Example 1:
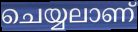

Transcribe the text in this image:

ചെയ്യലാണ്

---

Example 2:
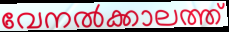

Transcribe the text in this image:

വേനൽക്കാലത്ത്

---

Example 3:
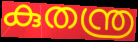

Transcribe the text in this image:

കുതന്ത്ര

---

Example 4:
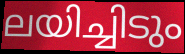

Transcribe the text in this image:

ലയിച്ചിടും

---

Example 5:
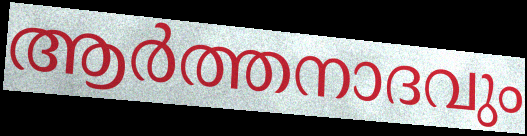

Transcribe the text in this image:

ആർത്തനാദവും